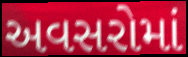
અવસરોમાં